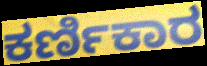
ಕರ್ಣಿಕಾರ